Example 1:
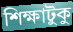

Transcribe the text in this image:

শিক্ষাটুকু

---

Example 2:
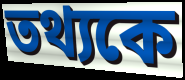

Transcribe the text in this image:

তথ্যকে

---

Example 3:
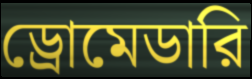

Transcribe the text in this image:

ড্রোমেডারি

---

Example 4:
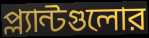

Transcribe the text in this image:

প্ল্যান্টগুলোর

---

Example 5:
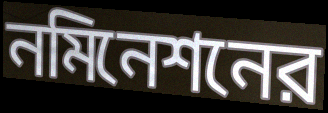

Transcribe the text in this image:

নমিনেশনের